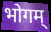
भोगम्